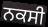
ਨਕਸੀ